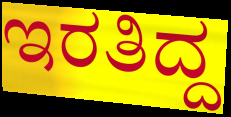
ಇರತಿದ್ದ